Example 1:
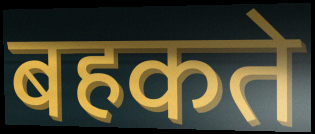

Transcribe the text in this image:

बहकते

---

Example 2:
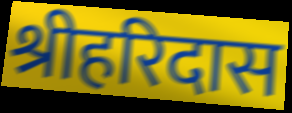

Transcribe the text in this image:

श्रीहरिदास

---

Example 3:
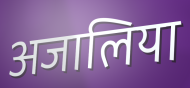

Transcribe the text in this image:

अजालिया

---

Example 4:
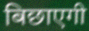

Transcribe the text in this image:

बिछाएगी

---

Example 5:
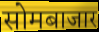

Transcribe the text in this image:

सोमबाजार